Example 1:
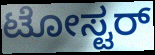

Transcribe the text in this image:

ಟೋಸ್ಟರ್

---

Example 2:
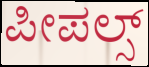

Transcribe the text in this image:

ಪೀಪಲ್ಸ್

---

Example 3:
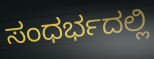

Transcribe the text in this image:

ಸಂಧರ್ಭದಲ್ಲಿ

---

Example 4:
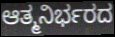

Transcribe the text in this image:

ಆತ್ಮನಿರ್ಭರದ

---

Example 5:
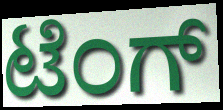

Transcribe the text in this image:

ಟೆಂಗ್